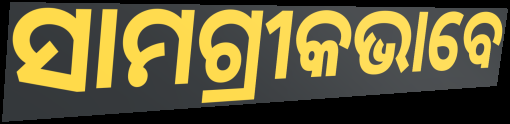
ସାମଗ୍ରୀକଭାବେ